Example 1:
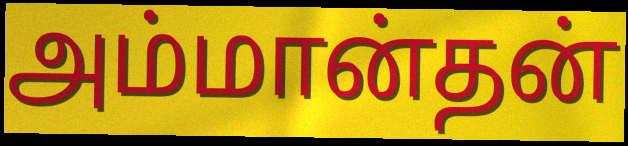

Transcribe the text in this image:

அம்மான்தன்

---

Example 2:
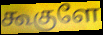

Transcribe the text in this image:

கூகுளே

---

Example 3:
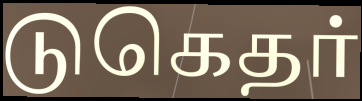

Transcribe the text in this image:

டுகெதர்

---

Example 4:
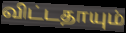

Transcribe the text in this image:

விட்டதாயும்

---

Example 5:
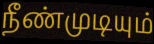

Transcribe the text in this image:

நீண்முடியும்